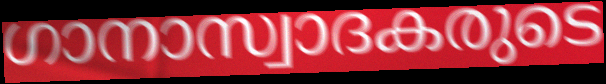
ഗാനാസ്വാദകരുടെ